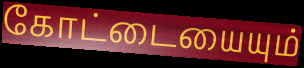
கோட்டையையும்